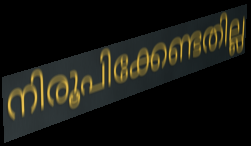
നിരൂപിക്കേണ്ടതില്ല